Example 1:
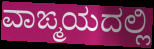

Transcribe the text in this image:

ವಾಙ್ಮಯದಲ್ಲಿ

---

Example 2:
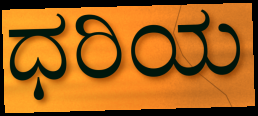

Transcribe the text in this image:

ಧರಿಯ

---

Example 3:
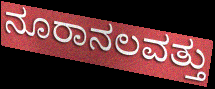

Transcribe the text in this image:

ನೂರಾನಲವತ್ತು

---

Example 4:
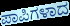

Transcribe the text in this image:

ಪಾಪಿಗಳಾದ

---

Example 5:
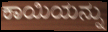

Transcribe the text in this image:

ಕಾಯಿಯನ್ನು